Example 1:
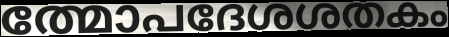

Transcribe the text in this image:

ത്മോപദേശശതകം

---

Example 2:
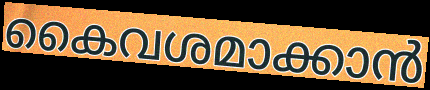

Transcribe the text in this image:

കൈവശമാക്കാൻ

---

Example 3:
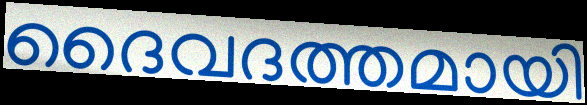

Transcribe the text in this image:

ദൈവദത്തമായി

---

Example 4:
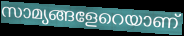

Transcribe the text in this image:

സാമ്യങ്ങളേറെയാണ്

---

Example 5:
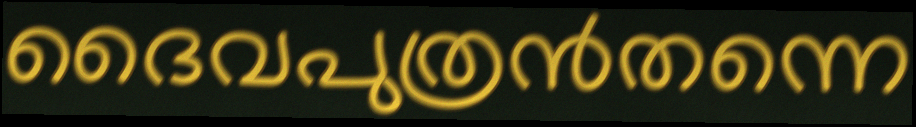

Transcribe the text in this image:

ദൈവപുത്രൻതന്നെ